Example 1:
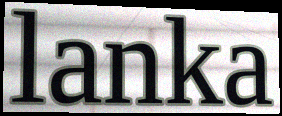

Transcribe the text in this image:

lanka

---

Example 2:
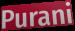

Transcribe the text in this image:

Purani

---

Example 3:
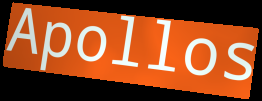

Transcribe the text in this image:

Apollos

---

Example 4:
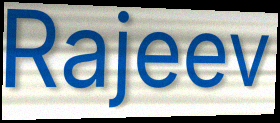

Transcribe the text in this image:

Rajeev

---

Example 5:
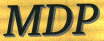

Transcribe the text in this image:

MDP